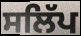
ਸਲਿੱਪ